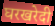
घरखरेदी